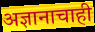
अज्ञानाचाही